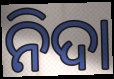
ନିଦା